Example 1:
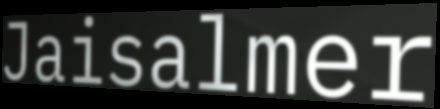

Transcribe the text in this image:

Jaisalmer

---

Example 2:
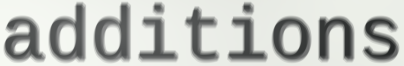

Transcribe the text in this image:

additions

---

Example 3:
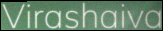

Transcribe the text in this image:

Virashaiva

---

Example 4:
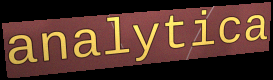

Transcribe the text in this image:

analytica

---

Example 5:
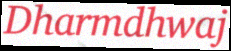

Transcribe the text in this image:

Dharmdhwaj